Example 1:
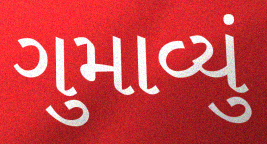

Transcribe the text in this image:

ગુમાવ્યું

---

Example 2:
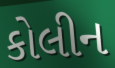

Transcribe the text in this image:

કોલીન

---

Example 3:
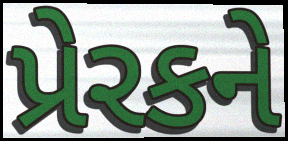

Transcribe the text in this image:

પ્રેરકને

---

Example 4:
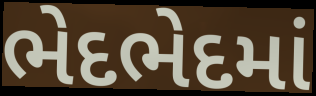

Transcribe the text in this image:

ભેદભેદમાં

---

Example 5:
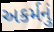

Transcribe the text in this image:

અકર્મનું